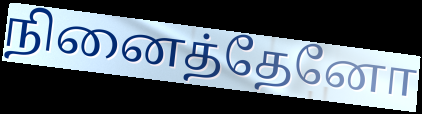
நினைத்தேனோ